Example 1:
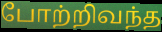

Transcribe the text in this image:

போற்றிவந்த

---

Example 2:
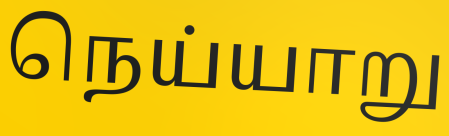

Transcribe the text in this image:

நெய்யாறு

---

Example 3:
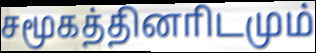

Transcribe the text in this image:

சமூகத்தினரிடமும்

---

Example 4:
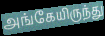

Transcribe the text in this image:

அங்கேயிருந்து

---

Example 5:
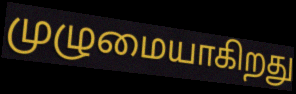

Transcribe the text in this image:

முழுமையாகிறது